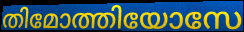
തിമോത്തിയോസേ